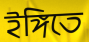
ইঙ্গিতে